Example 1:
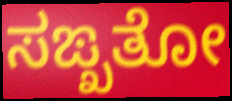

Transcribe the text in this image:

ಸಙ್ಖತೋ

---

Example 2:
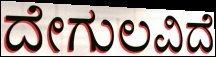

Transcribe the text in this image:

ದೇಗುಲವಿದೆ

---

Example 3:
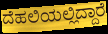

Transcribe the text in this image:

ದೆಹಲಿಯಲ್ಲಿದ್ದಾರೆ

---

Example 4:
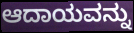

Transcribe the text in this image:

ಆದಾಯವನ್ನು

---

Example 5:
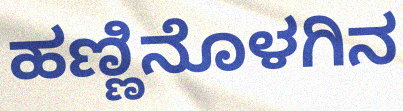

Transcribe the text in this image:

ಹಣ್ಣಿನೊಳಗಿನ